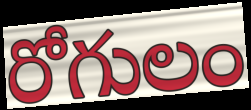
రోగులం